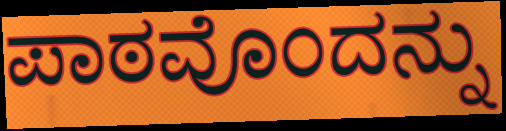
ಪಾಠವೊಂದನ್ನು